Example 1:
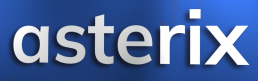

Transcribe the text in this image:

asterix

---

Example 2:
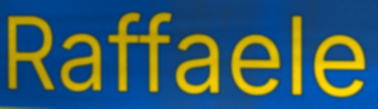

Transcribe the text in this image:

Raffaele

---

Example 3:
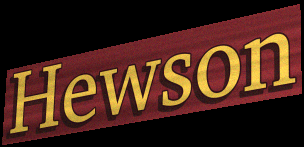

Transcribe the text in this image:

Hewson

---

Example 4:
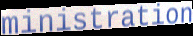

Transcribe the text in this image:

ministration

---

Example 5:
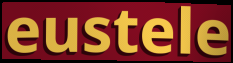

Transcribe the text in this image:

eustele